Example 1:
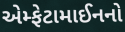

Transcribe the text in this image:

એમ્ફેટામાઈનનો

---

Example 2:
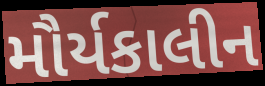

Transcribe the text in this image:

મૌર્યકાલીન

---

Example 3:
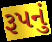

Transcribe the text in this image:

રૂપનું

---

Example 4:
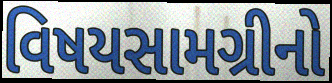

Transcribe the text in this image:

વિષયસામગ્રીનો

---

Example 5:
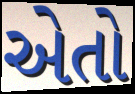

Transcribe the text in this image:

એતો